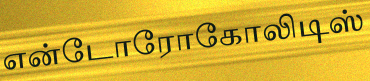
என்டோரோகோலிடிஸ்